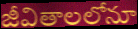
జీవితాలలోనూ